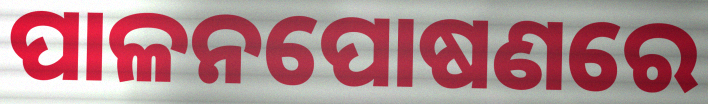
ପାଳନପୋଷଣରେ